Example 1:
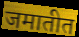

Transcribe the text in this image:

जमातीत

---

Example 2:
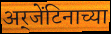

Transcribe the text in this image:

अर्जेंटिनाच्या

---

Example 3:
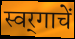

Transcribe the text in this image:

स्वर्गाचें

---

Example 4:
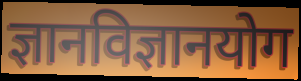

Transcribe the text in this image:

ज्ञानविज्ञानयोग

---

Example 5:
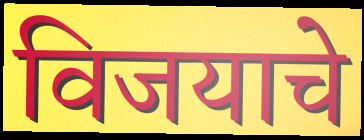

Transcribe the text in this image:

विजयाचे